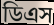
ডিএস